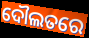
ଦୌଲତରେ